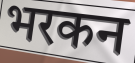
भरकन